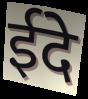
ईदे